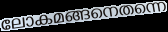
ലോകമങ്ങനെതന്നെ